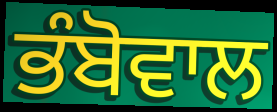
ਭੰਬੋਵਾਲ